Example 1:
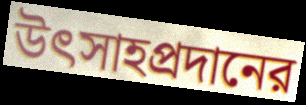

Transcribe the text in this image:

উৎসাহপ্রদানের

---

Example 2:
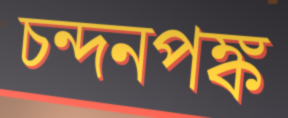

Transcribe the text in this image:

চন্দনপঙ্ক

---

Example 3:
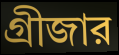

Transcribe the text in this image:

গ্রীজার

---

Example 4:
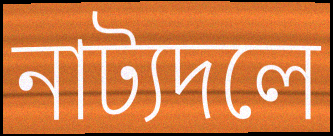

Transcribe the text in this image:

নাট্যদলে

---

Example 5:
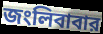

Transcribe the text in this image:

জংলিবাবার